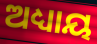
ଅଧ୍ୟାୟ